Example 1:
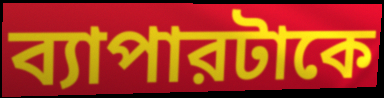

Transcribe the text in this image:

ব্যাপারটাকে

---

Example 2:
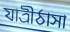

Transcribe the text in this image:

যাত্রীঠাসা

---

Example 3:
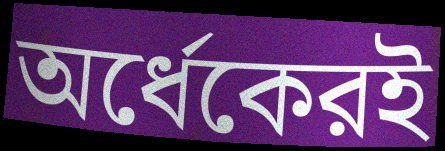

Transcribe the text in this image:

অর্ধেকেরই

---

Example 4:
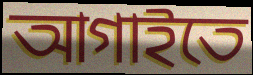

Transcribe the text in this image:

আগাইতে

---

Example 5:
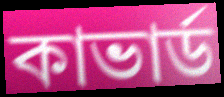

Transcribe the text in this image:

কাভার্ড